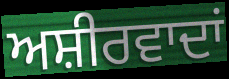
ਅਸ਼ੀਰਵਾਦਾਂ